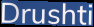
Drushti